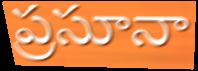
ప్రసూనా